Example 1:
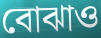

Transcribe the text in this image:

বোঝাও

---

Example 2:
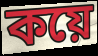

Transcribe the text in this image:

কয়ে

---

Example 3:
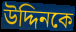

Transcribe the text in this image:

উদ্দিনকে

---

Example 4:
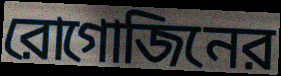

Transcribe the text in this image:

রোগোজিনের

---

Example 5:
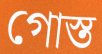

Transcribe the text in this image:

গোস্ত